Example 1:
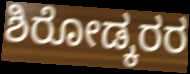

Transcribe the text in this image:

ಶಿರೋಡ್ಕರರ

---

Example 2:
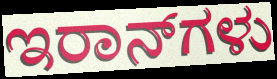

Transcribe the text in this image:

ಇರಾನ್‌ಗಳು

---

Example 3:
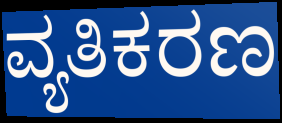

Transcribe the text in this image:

ವ್ಯತಿಕರಣ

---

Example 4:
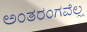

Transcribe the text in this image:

ಅಂತರಂಗವೆಲ್ಲ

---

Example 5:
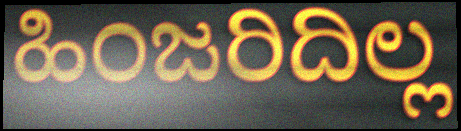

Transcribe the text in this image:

ಹಿಂಜರಿದಿಲ್ಲ